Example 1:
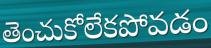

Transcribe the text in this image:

తెంచుకోలేకపోవడం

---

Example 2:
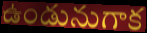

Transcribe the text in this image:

ఉండునుగాక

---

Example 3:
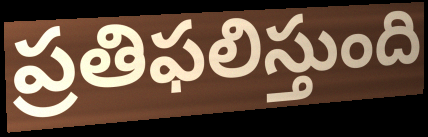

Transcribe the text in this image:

ప్రతిఫలిస్తుంది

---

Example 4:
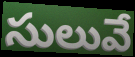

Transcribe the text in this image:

సులువే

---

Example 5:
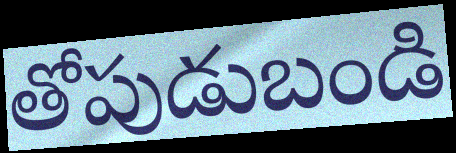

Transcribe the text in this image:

తోపుడుబండి